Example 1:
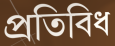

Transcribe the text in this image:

প্ৰতিবিধ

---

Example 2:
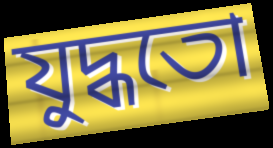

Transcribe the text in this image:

যুদ্ধতো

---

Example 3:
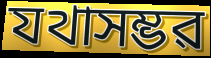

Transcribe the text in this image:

যথাসম্ভৱ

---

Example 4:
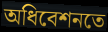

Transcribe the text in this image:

অধিবেশনতে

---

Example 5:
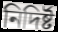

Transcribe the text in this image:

নিদিৰ্ষ্ট